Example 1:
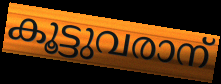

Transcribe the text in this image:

കൂട്ടുവരാന്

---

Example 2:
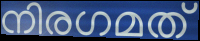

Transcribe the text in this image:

നിരഗമത്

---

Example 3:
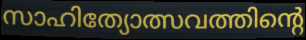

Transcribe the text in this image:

സാഹിത്യോത്സവത്തിന്റെ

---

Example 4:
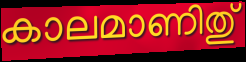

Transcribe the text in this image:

കാലമാണിതു്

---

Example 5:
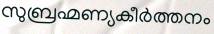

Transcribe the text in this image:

സുബ്രഹ്മണ്യകീർത്തനം